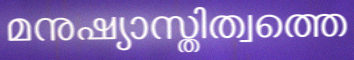
മനുഷ്യാസ്തിത്വത്തെ